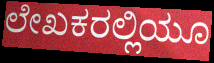
ಲೇಖಕರಲ್ಲಿಯೂ